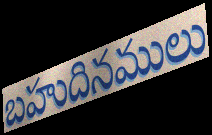
బహుదినములు